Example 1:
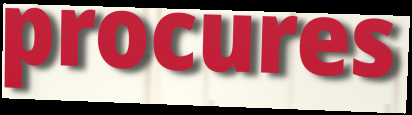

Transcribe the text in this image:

procures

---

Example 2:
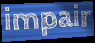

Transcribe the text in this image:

impair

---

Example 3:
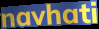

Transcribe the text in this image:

navhati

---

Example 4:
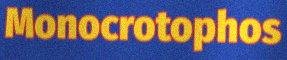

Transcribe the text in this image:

Monocrotophos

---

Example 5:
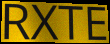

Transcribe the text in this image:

RXTE